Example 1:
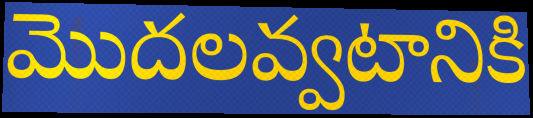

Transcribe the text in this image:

మొదలవ్వటానికి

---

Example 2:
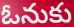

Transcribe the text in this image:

ఓనుకు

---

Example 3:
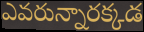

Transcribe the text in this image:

ఎవరున్నారక్కడ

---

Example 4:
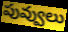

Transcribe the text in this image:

పువ్వులు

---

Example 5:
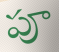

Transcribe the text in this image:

పూ